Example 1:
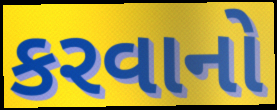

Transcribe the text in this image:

કરવાનો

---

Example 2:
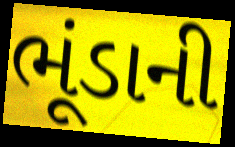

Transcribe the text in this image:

ભૂંડાની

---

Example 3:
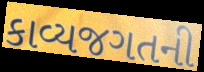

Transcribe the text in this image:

કાવ્યજગતની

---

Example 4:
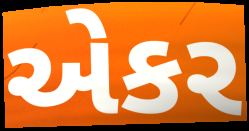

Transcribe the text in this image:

એકર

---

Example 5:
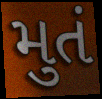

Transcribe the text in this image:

મુતં